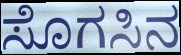
ಸೊಗಸಿನ